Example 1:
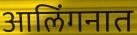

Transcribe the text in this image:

आलिंगनात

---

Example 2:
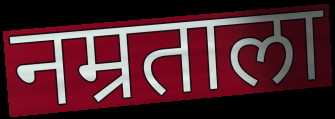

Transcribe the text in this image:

नम्रताला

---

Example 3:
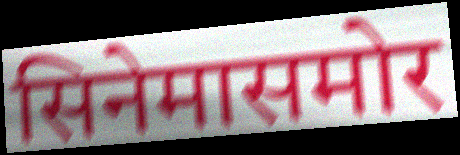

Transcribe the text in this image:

सिनेमासमोर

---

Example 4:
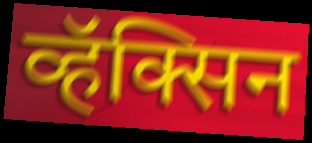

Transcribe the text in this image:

व्हॅक्सिन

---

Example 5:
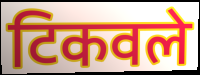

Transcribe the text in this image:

टिकवले